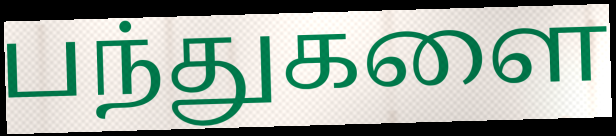
பந்துகளை